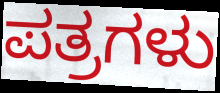
ಪತ್ರಗಳು